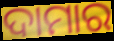
ଦାମାର